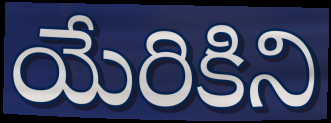
యేరికిని